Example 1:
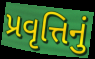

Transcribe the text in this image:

પ્રવૃત્તિનું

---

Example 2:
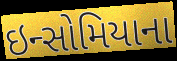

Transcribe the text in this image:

ઇન્સોમિયાના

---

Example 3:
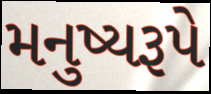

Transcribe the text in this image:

મનુષ્યરૂપે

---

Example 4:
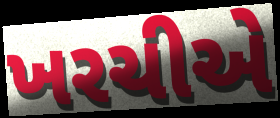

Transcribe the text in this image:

ખરચીએ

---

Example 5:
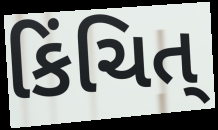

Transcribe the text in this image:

કિંચિત્